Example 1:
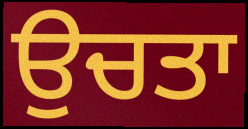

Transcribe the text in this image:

ਉਚਤਾ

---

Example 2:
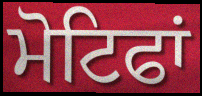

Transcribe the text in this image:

ਮੋਟਿਫਾਂ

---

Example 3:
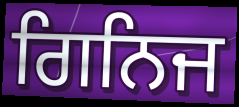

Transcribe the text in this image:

ਗਿਨਿਜ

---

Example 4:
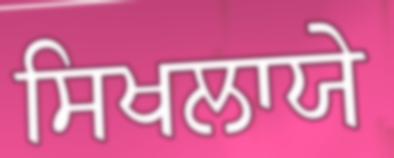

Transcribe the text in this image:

ਸਿਖਲਾਯੇ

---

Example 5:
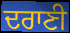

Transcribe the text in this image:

ਦਰਾਣੀ